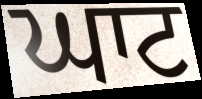
ਘਾਟ